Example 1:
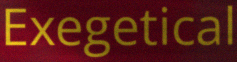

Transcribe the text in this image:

Exegetical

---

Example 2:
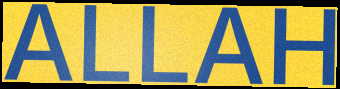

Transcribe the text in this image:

ALLAH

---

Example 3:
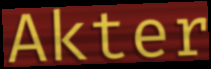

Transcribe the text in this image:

Akter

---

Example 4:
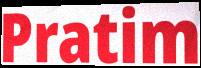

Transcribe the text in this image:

Pratim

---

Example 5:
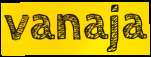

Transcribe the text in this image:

vanaja